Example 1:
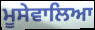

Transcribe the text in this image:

ਮੂਸੇਵਾਲਿਆ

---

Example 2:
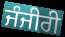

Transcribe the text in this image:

ਜੰਜੀਰੀ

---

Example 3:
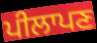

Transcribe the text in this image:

ਪੀਲਾਪਣ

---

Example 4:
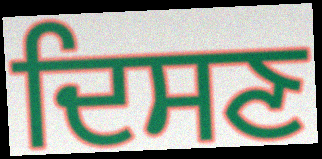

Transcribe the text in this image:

ਦਿਸਣ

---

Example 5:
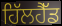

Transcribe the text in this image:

ਹਿੱਲਹੈੱਡ